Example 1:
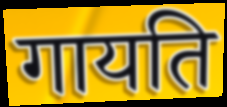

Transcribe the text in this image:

गायति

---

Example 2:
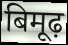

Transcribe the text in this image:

बिमूढ़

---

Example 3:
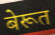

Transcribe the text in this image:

बेरूत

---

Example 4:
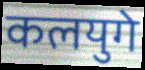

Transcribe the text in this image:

कलयुगे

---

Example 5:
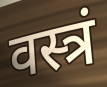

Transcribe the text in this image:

वस्त्रं